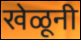
खेळूनी